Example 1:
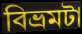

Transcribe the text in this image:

বিভ্রমটা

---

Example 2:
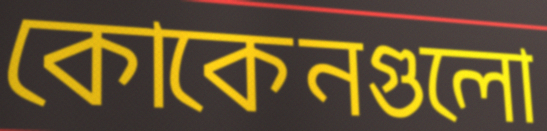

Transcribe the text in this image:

কোকেনগুলো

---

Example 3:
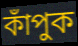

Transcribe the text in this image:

কাঁপুক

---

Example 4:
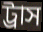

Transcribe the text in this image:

ট্রাস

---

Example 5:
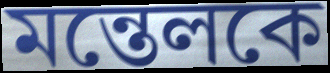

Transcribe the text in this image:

মন্তেলকে